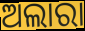
ଅଲାରା